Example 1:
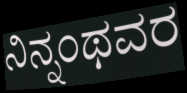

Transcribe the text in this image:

ನಿನ್ನಂಥವರ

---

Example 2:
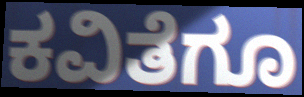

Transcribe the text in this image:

ಕವಿತೆಗೂ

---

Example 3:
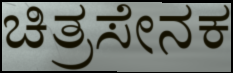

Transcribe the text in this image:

ಚಿತ್ರಸೇನಕ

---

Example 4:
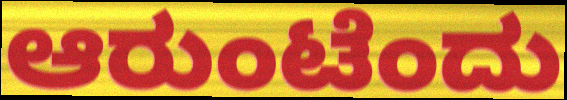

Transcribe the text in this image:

ಆರುಂಟೆಂದು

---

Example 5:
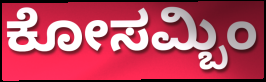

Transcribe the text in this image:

ಕೋಸಮ್ಬಿಂ